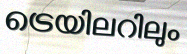
ട്രെയിലറിലും